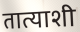
तात्याशी